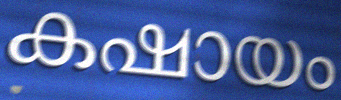
കഷായം